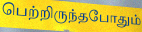
பெற்றிருந்தபோதும்